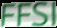
FFSI